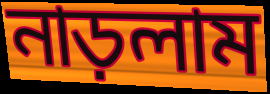
নাড়লাম